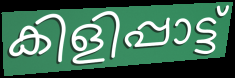
കിളിപ്പാട്ട്